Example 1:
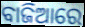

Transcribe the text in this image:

ବାଜିଆରେ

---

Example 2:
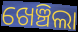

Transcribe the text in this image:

ଖେଞ୍ଚିଲା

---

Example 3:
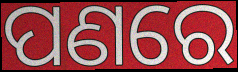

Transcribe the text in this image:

ପଣରେ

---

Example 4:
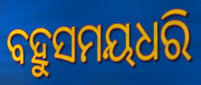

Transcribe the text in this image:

ବହୁସମୟଧରି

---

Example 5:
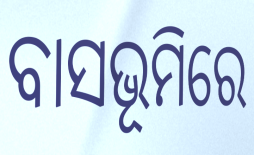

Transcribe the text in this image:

ବାସଭୂମିରେ